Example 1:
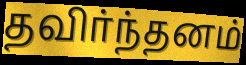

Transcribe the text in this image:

தவிர்ந்தனம்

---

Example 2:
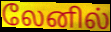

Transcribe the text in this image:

லேனில்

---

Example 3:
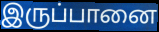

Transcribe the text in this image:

இருப்பானை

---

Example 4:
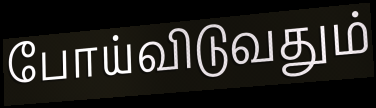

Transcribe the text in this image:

போய்விடுவதும்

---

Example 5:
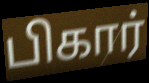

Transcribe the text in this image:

பிகார்